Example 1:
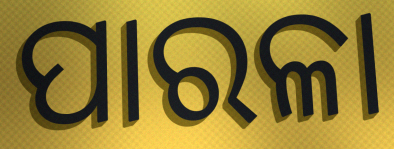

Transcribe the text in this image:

ପାରଳା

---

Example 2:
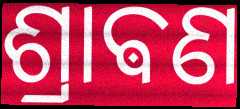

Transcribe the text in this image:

ଶ୍ରାଵଣ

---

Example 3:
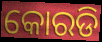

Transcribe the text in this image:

କୋରଡି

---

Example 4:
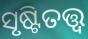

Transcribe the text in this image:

ସୃଷ୍ଟିତତ୍ତ୍ୱ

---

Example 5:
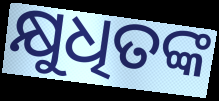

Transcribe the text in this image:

କ୍ଷୁଧିତଙ୍କ